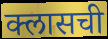
क्लासची